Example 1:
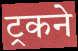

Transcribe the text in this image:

ट्रकने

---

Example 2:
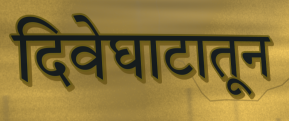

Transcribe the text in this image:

दिवेघाटातून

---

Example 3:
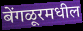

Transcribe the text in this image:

बेंगळूरमधील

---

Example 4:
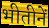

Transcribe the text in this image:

भीतीनें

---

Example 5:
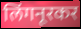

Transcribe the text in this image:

लिंगनूरकर